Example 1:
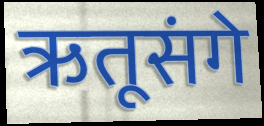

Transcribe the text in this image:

ऋतूसंगे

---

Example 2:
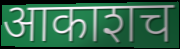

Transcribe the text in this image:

आकाशच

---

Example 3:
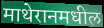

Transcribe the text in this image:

माथेरानमधील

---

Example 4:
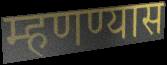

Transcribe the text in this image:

म्हणण्यास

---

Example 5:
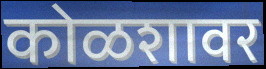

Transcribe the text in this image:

कोळशावर